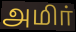
அமிர்